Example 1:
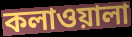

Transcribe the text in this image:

কলাওয়ালা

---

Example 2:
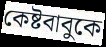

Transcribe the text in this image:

কেষ্টবাবুকে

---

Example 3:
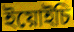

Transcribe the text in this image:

ইয়োইচি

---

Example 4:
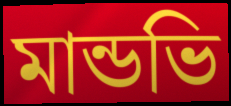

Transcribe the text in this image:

মান্ডভি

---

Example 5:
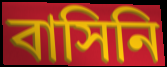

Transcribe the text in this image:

বাসিনি